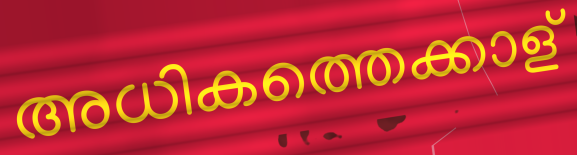
അധികത്തെക്കാള്